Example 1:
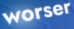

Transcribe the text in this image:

worser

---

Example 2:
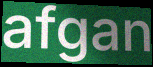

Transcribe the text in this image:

afgan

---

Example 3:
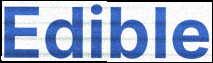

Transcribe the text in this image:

Edible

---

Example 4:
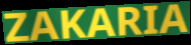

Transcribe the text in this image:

ZAKARIA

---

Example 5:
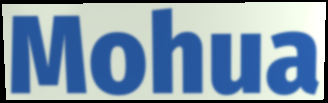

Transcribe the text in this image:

Mohua